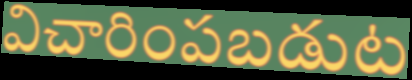
విచారింపబడుట